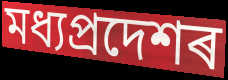
মধ্যপ্ৰদেশৰ